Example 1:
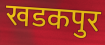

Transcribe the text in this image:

खडकपुर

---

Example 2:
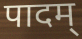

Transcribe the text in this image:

पादम्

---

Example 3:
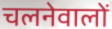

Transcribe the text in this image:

चलनेवालों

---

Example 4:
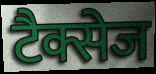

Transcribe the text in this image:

टैक्सेज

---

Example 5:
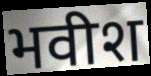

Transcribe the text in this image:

भवीश